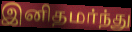
இனிதமர்ந்து